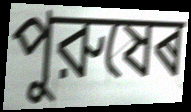
পুৰুষেৰ